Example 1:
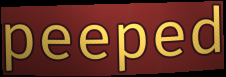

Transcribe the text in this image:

peeped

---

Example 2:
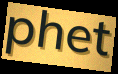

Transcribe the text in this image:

phet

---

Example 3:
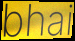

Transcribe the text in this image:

bhai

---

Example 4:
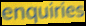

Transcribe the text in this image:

enquiries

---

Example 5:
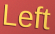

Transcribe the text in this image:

Left